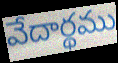
వేదార్థము